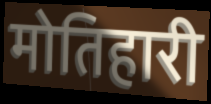
मोतिहारी